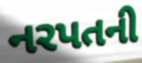
નરપતની